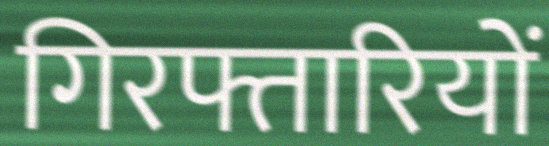
गिरफ्तारियों